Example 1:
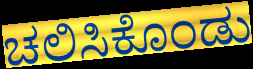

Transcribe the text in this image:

ಚಲಿಸಿಕೊಂಡು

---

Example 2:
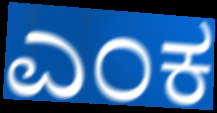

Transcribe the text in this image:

ಎಂಕ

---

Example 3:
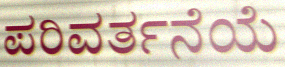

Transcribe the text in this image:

ಪರಿವರ್ತನೆಯೆ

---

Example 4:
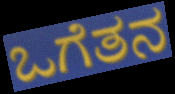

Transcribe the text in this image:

ಒಗೆತನ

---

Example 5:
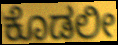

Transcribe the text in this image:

ಕೊಡಲೀ